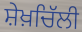
ਸ਼ੇਖ਼ਚਿੱਲੀ